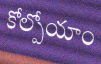
కోల్పోయాం